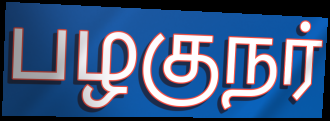
பழகுநர்